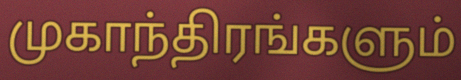
முகாந்திரங்களும்